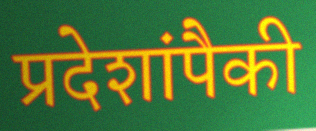
प्रदेशांपैकी